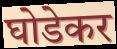
घोडेकर